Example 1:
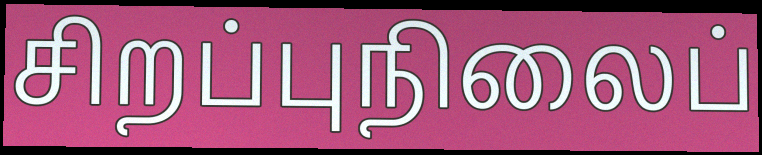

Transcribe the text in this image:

சிறப்புநிலைப்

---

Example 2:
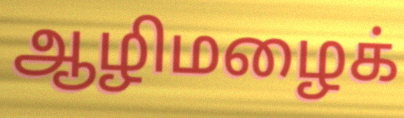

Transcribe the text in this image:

ஆழிமழைக்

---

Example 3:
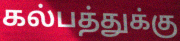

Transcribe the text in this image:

கல்பத்துக்கு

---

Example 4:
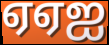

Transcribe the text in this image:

ஏஏஐ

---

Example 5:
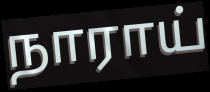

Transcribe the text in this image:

நாராய்